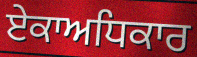
ਏਕਾਅਧਿਕਾਰ